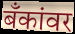
बँकांवर